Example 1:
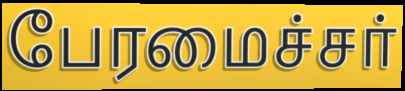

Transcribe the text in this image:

பேரமைச்சர்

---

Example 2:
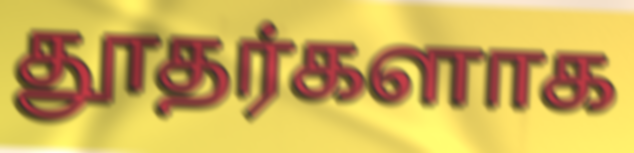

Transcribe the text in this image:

தூதர்களாக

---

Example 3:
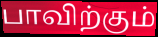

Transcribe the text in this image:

பாவிற்கும்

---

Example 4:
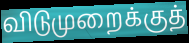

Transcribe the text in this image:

விடுமுறைக்குத்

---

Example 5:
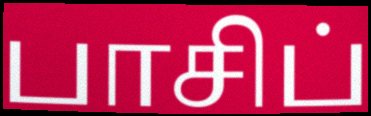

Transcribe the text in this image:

பாசிப்